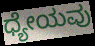
ಧ್ಯೇಯವು